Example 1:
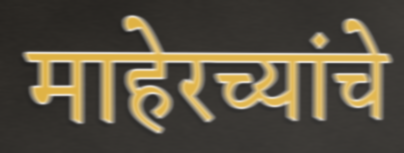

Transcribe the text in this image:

माहेरच्यांचे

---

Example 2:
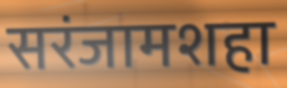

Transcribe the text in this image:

सरंजामशहा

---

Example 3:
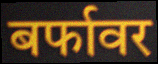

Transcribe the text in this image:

बर्फावर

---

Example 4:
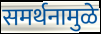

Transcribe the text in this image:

समर्थनामुळे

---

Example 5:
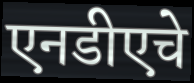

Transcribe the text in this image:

एनडीएचे